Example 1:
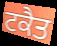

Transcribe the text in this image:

ਟਕੈਤ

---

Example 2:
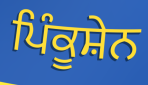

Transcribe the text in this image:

ਪਿੰਕੂਸ਼ੇਨ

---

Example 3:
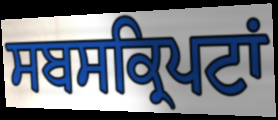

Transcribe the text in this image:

ਸਬਸਕ੍ਰਿਪਟਾਂ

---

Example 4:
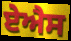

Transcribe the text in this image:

ਏਐਸ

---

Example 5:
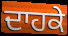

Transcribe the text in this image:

ਦਾਹਕੇ